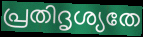
പ്രതിദൃശ്യതേ